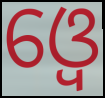
ଓ୍ବେ